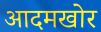
आदमखोर